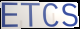
ETCS